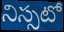
నిస్సటో